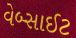
વેબ્સાઈટ